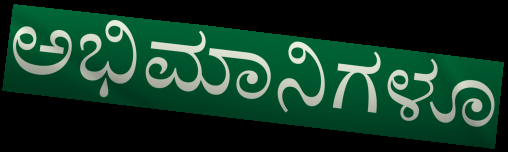
ಅಭಿಮಾನಿಗಳೂ